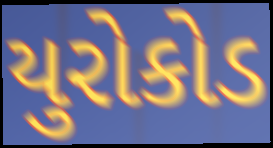
યુરોકોડ